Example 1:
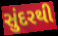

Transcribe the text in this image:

સુંદરથી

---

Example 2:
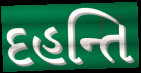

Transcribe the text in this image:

દહન્તિ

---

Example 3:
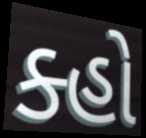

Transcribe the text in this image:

ક્હો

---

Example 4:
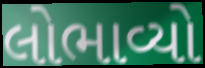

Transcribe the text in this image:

લોભાવ્યો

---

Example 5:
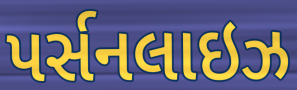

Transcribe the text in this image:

પર્સનલાઇઝ